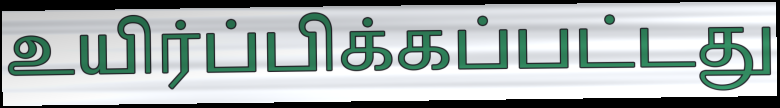
உயிர்ப்பிக்கப்பட்டது